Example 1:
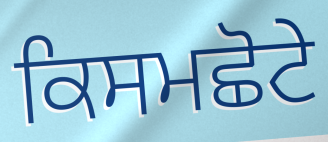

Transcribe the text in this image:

ਕਿਸਮਛੋਟੇ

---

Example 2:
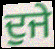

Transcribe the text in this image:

ਦੁਜੇ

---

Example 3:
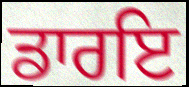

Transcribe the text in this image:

ਡਾਰਇ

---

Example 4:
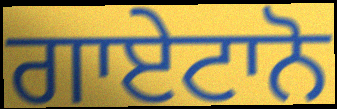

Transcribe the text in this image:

ਗਾਏਟਾਨੋ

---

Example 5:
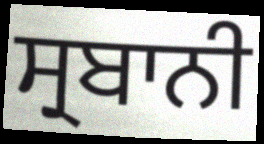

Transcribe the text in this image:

ਸ੍ਰਬਾਨੀ